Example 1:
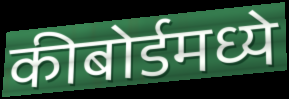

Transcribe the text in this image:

कीबोर्डमध्ये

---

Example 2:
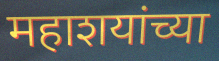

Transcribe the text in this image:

महाशयांच्या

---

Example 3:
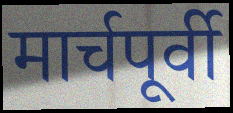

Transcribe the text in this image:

मार्चपूर्वी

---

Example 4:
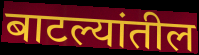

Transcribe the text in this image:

बाटल्यांतील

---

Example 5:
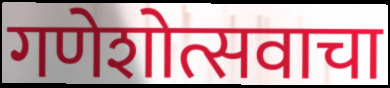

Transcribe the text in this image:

गणेशोत्सवाचा